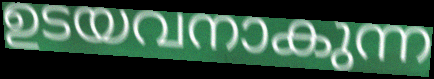
ഉടയവനാകുന്ന